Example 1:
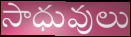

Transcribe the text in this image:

సాధువులు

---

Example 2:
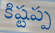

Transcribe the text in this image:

కిష్టప్ప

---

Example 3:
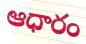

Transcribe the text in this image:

ఆధారం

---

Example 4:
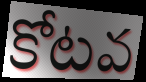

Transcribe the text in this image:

కోటవ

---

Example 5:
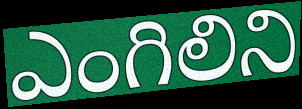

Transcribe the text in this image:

ఎంగిలిని